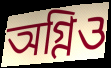
অগ্নিও